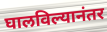
घालविल्यानंतर